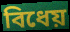
বিধেয়